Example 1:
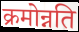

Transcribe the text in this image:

क्रमोन्नति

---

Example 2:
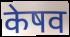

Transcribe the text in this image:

केषव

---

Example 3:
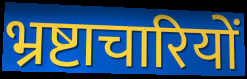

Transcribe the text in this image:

भ्रष्टाचारियों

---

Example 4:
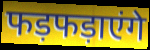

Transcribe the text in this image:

फड़फड़ाएंगे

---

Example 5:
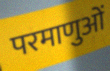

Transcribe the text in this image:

परमाणुओं